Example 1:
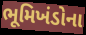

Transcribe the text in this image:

ભૂમિખંડોના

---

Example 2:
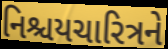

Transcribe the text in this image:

નિશ્ચયચારિત્રને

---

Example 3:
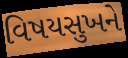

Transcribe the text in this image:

વિષયસુખને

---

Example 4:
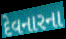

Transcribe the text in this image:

દેવનારના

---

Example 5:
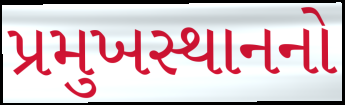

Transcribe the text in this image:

પ્રમુખસ્થાનનો